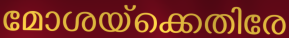
മോശയ്‌ക്കെതിരേ